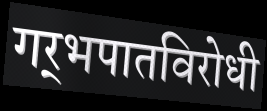
गर्भपातविरोधी